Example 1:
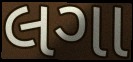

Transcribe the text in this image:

લગા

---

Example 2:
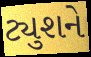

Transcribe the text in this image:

ટ્યુશને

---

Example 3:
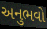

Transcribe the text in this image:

અનુભવો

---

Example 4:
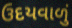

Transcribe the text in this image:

ઉદયવાળું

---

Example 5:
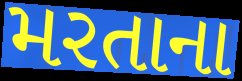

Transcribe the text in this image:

મરતાના